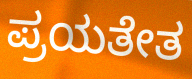
ಪ್ರಯತೇತ